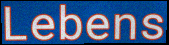
Lebens